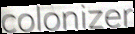
colonizer